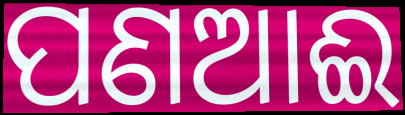
ପଣଆଈ